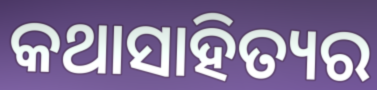
କଥାସାହିତ୍ୟର